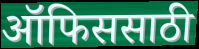
ऑफिससाठी